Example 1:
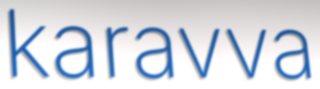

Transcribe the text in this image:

karavva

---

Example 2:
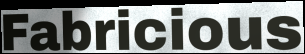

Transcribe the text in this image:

Fabricious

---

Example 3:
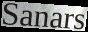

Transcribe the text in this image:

Sanars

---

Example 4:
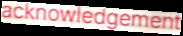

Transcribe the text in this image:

acknowledgement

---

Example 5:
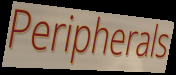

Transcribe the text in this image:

Peripherals